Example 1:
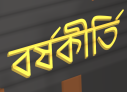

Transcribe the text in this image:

বর্ষকীর্তি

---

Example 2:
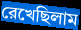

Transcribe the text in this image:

রেখেছিলাম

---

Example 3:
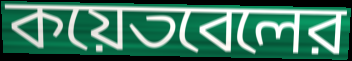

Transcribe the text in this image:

কয়েতবেলের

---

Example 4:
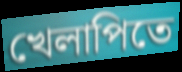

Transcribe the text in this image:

খেলাপিতে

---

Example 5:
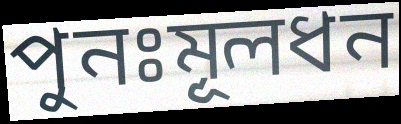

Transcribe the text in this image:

পুনঃমূলধন